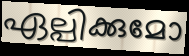
ഏല്പിക്കുമോ